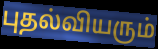
புதல்வியரும்